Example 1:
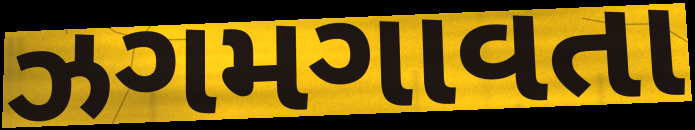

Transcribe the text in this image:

ઝગમગાવતા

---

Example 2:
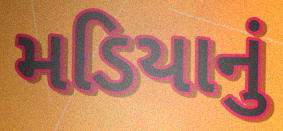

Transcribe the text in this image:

મડિયાનું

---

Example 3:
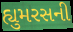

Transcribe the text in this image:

હ્યુમરસની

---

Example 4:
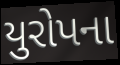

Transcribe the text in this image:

યુરોપના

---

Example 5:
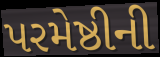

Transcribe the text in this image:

પરમેષ્ઠીની